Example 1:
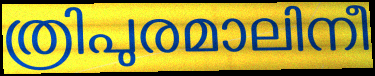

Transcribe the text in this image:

ത്രിപുരമാലിനീ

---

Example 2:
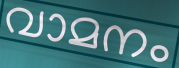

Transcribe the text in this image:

വാമനം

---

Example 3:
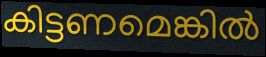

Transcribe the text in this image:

കിട്ടണമെങ്കിൽ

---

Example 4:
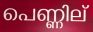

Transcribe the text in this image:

പെണ്ണില്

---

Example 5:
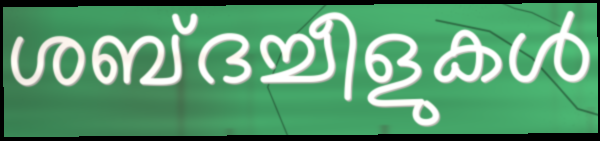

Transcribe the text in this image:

ശബ്ദച്ചീളുകൾ